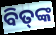
ବିତ୍‌ଙ୍କ